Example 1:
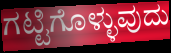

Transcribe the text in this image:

ಗಟ್ಟಿಗೊಳ್ಳುವುದು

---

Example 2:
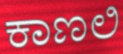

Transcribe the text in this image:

ಕಾಣಲಿ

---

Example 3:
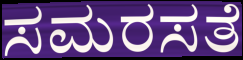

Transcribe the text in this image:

ಸಮರಸತೆ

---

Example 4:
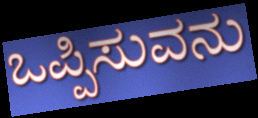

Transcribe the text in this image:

ಒಪ್ಪಿಸುವನು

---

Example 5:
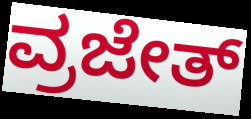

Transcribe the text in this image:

ವ್ರಜೇತ್